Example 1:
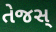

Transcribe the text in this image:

તેજસ્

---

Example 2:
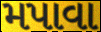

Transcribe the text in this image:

મપાવા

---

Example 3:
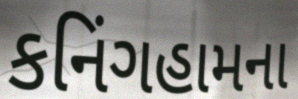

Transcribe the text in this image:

કનિંગહામના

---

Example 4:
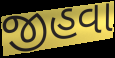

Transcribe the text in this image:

જીહવા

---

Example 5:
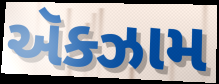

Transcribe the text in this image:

ઍક્ઝામ